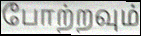
போற்றவும்